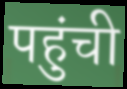
पहुंची